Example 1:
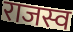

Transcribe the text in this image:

राजस्‍व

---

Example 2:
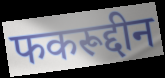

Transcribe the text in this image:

फकरूद्दीन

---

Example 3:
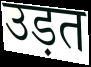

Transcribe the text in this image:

उड़त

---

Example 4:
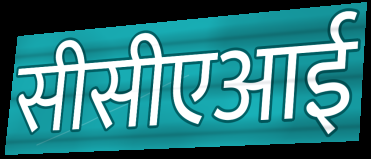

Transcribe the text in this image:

सीसीएआई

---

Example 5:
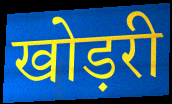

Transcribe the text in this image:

खोड़री